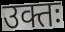
उक्तः